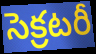
సెక్రటరీ